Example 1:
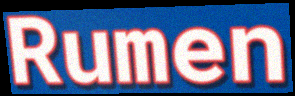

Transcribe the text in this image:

Rumen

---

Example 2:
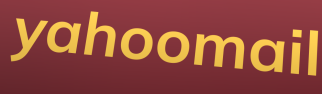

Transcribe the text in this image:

yahoomail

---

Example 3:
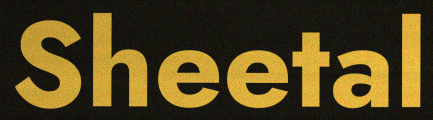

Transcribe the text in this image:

Sheetal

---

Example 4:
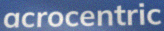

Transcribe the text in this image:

acrocentric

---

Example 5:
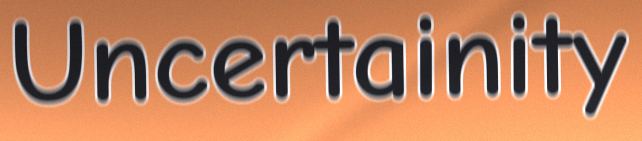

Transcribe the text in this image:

Uncertainity